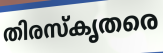
തിരസ്കൃതരെ